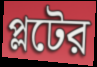
প্লটের